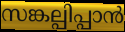
സങ്കല്പിപ്പാൻ